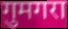
गुमगरा